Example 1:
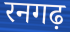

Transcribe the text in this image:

रनगढ़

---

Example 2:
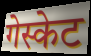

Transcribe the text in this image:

गेस्केट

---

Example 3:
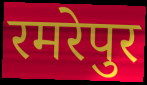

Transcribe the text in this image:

रमरेपुर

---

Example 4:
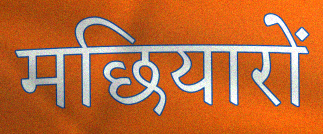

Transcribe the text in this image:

मछियारों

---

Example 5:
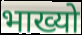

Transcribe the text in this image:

भाख्यो